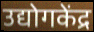
उद्योगकेंद्र